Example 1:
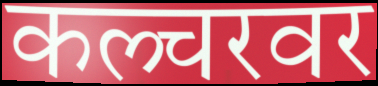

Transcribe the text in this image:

कल्चरवर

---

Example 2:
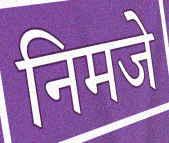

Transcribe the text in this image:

निमजे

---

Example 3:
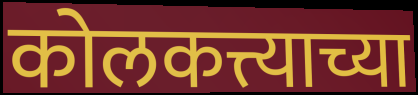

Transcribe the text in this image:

कोलकत्त्याच्या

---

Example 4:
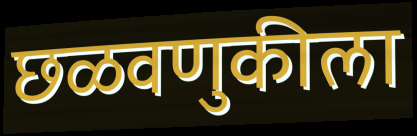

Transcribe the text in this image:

छळवणुकीला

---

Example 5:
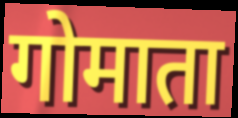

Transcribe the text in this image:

गोमाता